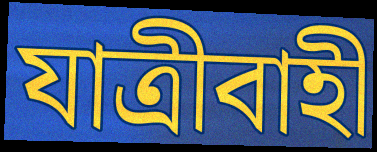
যাত্রীবাহী